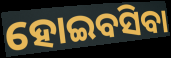
ହୋଇବସିବା